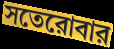
সতেরোবার